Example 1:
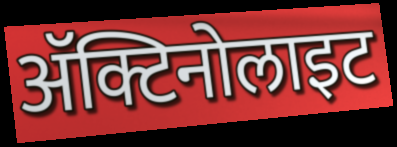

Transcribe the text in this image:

ॲक्टिनोलाइट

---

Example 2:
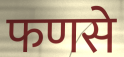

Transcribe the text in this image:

फणसे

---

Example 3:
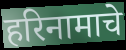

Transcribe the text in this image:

हरिनामाचे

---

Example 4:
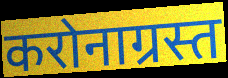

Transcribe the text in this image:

करोनाग्रस्त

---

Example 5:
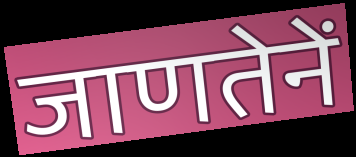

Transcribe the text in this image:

जाणतेनें